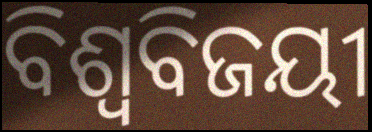
ବିଶ୍ଵବିଜୟୀ